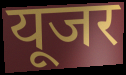
यूजर